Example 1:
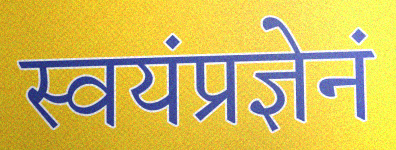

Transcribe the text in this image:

स्वयंप्रज्ञेनं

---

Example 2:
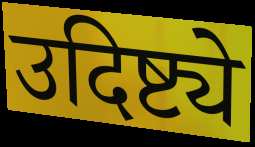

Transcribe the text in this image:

उदिष्ट्ये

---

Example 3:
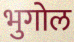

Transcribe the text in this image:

भुगोल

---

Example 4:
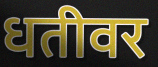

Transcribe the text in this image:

धतीवर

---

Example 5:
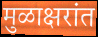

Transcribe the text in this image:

मुळाक्षरांत